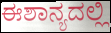
ಈಶಾನ್ಯದಲ್ಲಿ